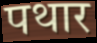
पथार